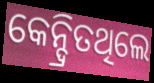
କେନ୍ଦ୍ରିତଥିଲେ